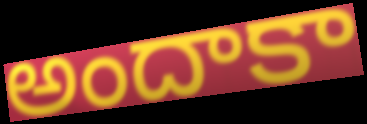
అందాకా